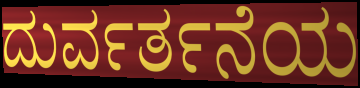
ದುರ್ವರ್ತನೆಯ